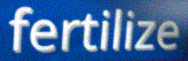
fertilize